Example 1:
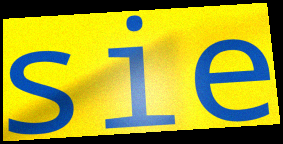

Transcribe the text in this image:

sie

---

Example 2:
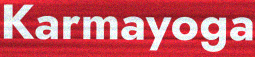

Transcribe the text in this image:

Karmayoga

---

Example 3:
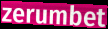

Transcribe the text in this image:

zerumbet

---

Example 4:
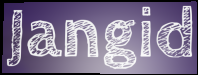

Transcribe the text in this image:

Jangid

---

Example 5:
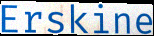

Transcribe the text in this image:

Erskine